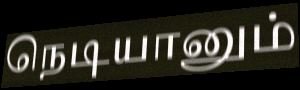
நெடியானும்